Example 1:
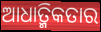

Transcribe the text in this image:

ଆଧାତ୍ମିକତାର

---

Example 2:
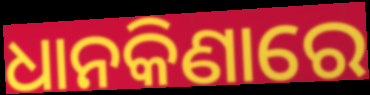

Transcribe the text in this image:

ଧାନକିଣାରେ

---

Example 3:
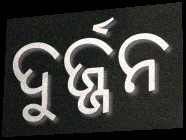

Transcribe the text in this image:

ଦୁର୍ଜ୍ଜନ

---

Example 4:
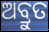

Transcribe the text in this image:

ଅବ୍ରୁତ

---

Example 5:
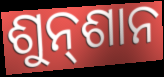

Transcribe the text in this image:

ଶୁନ୍‍ଶାନ